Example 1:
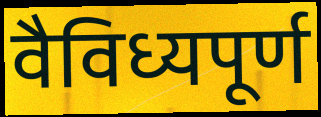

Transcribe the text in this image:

वैविध्यपूर्ण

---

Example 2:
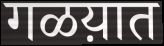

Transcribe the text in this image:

गळय़ात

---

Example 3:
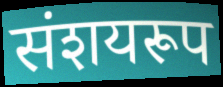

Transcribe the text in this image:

संशयरूप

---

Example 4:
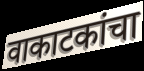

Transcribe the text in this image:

वाकाटकांचा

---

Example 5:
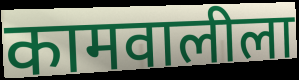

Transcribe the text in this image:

कामवालीला